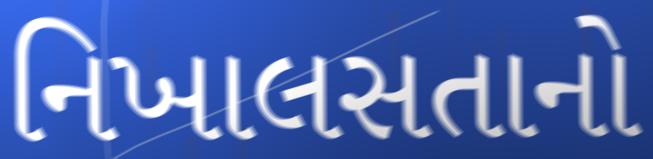
નિખાલસતાનો